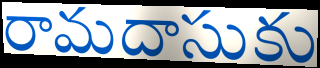
రామదాసుకు